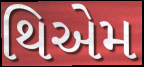
થિએમ